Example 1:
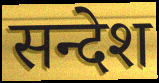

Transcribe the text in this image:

सन्देश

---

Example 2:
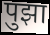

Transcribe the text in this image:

पुझा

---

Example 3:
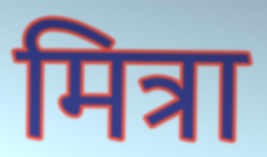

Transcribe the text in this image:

मित्रा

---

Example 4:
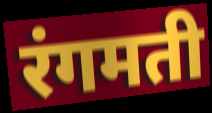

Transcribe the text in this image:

रंगमती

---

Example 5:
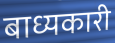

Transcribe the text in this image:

बाध्यकारी